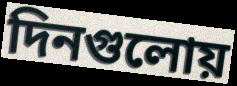
দিনগুলোয়